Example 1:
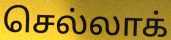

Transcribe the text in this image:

செல்லாக்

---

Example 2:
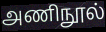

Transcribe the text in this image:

அணிநூல்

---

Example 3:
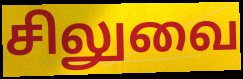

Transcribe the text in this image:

சிலுவை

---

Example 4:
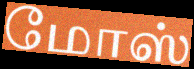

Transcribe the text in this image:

மோஸ்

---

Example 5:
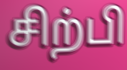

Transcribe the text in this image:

சிற்பி